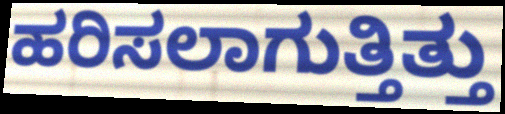
ಹರಿಸಲಾಗುತ್ತಿತ್ತು